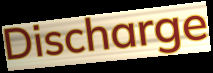
Discharge